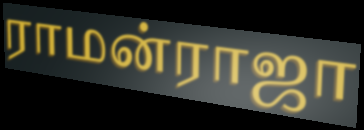
ராமன்ராஜா